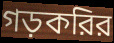
গড়করির